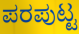
ಪರಪುಟ್ಟ